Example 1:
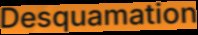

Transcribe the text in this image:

Desquamation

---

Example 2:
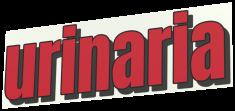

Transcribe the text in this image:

urinaria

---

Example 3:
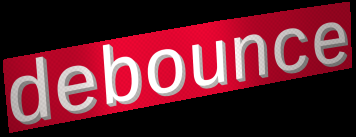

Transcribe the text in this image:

debounce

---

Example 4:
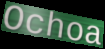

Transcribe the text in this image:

Ochoa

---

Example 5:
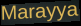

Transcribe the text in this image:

Marayya